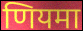
णियमा